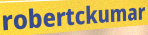
robertckumar